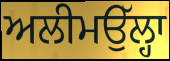
ਅਲੀਮਉੱਲ੍ਹਾ